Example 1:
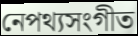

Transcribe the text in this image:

নেপথ্যসংগীত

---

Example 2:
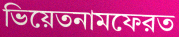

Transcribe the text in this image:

ভিয়েতনামফেরত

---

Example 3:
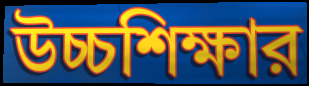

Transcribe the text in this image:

উচ্চশিক্ষার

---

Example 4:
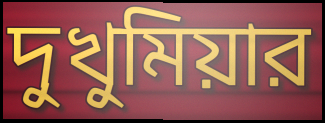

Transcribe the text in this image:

দুখুমিয়ার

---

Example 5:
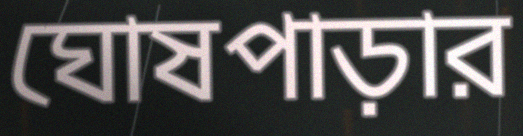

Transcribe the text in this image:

ঘোষপাড়ার